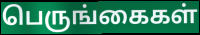
பெருங்கைகள்